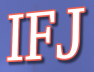
IFJ